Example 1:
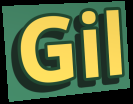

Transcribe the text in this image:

Gil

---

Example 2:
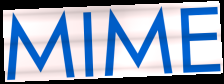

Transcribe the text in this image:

MIME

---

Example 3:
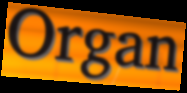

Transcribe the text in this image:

Organ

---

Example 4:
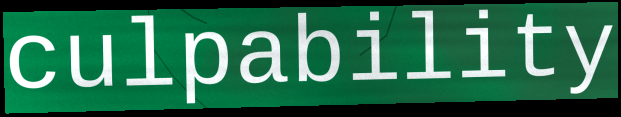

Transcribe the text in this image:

culpability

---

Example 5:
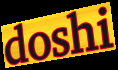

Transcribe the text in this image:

doshi